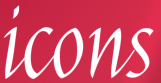
icons